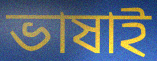
ভাষাই